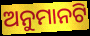
ଅନୁମାନଟି